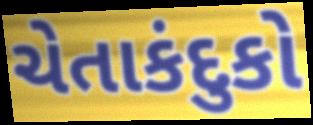
ચેતાકંદુકો